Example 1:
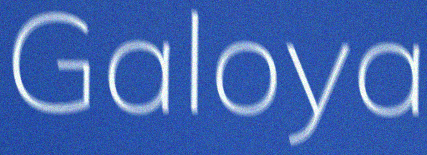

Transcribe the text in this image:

Galoya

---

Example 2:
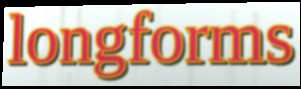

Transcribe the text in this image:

longforms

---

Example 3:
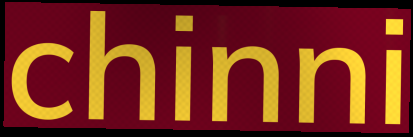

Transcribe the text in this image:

chinni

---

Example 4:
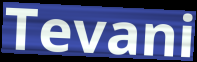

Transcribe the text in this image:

Tevani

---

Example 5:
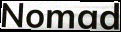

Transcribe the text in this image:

Nomad